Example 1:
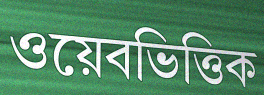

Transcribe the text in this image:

ওয়েবভিত্তিক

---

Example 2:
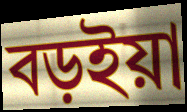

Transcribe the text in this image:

বড়ইয়া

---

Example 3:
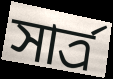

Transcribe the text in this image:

সার্ত্র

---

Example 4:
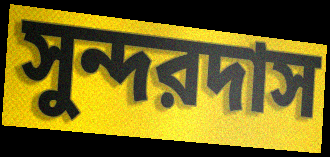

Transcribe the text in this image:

সুন্দরদাস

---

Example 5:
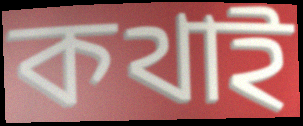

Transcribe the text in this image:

কথাই